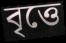
বৃত্তে